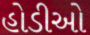
હોડીઓ